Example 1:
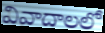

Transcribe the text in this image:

వివాదాలలో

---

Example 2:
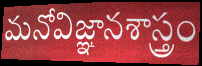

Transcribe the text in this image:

మనోవిజ్ఞానశాస్త్రం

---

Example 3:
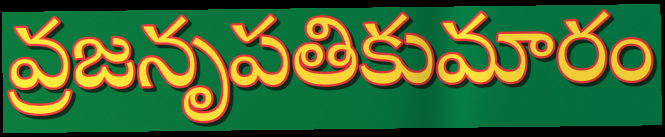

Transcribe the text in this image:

వ్రజనృపతికుమారం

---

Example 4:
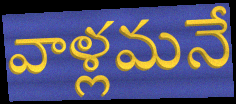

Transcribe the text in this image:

వాళ్లమనే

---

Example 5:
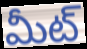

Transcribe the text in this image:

మీట్